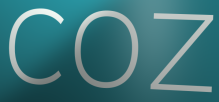
coz